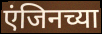
एंजिनच्या